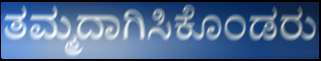
ತಮ್ಮದಾಗಿಸಿಕೊಂಡರು